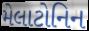
મેલાટોનિન